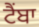
ਟੈਂਬਾ